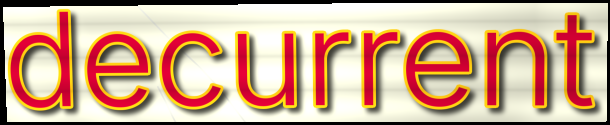
decurrent